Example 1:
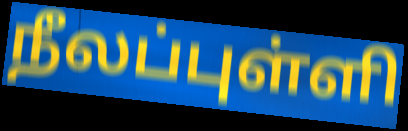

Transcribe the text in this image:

நீலப்புள்ளி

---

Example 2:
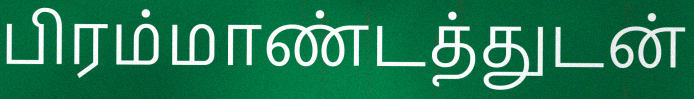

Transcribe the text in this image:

பிரம்மாண்டத்துடன்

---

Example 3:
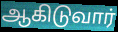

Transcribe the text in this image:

ஆகிடுவார்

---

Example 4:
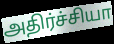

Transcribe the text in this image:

அதிர்ச்சியா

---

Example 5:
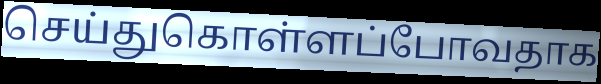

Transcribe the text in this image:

செய்துகொள்ளப்போவதாக